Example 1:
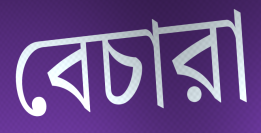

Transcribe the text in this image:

বেচারা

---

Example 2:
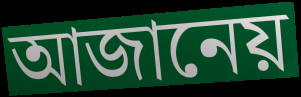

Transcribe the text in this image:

আজানেয়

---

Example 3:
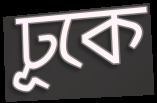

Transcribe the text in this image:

ঢূকে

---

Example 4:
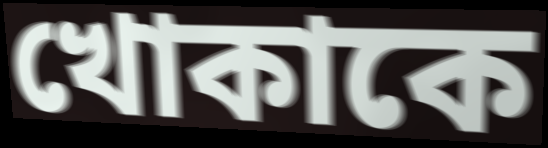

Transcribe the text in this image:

খোকাকে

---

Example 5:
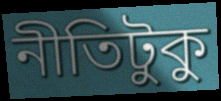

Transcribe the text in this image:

নীতিটুকু